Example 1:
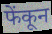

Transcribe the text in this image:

फेंकून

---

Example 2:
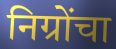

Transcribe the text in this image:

निग्रोंचा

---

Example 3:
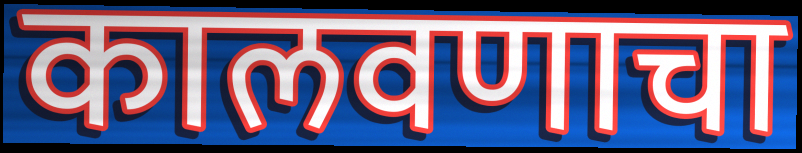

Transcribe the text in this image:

कालवणाचा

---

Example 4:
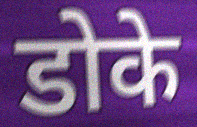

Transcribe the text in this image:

डोके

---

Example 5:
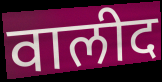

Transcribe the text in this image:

वालीद